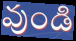
వుండి